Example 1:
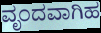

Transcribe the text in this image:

ವೃಂದವಾಗಿಹ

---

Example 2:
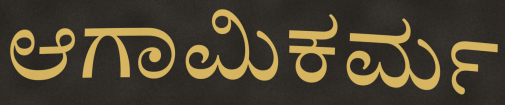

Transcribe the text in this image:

ಆಗಾಮಿಕರ್ಮ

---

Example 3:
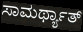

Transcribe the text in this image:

ಸಾಮರ್ಥ್ಯಾತ್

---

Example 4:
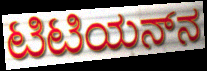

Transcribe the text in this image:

ಟಿಟಿಯನ್‌ನ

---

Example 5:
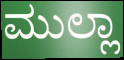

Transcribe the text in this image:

ಮುಲ್ಲಾ